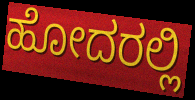
ಹೋದರಲ್ಲಿ